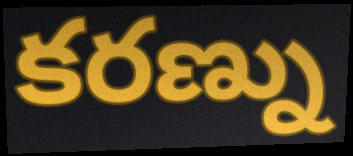
కరణ్ను